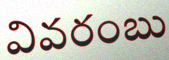
వివరంబు